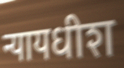
न्यायधीश